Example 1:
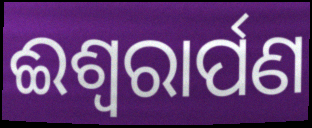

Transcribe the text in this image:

ଈଶ୍ୱରାର୍ପଣ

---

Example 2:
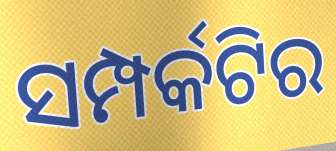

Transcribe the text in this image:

ସମ୍ପର୍କଟିର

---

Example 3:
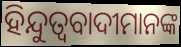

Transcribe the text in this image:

ହିନ୍ଦୁତ୍ଵବାଦୀମାନଙ୍କ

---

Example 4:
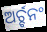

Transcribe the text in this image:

ଅର୍ଚ୍ଚନଂ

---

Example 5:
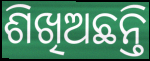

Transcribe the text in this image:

ଶିଖିଅଛନ୍ତି